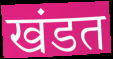
खंडत